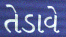
તેડાવે